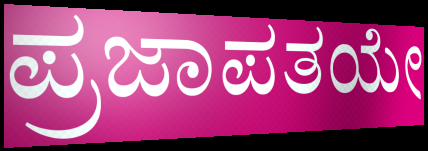
ಪ್ರಜಾಪತಯೇ